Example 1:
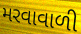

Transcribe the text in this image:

મરવાવાળી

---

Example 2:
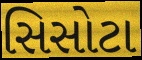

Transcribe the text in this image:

સિસોટા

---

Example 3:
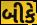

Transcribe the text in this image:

બીકે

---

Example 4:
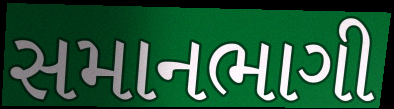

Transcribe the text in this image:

સમાનભાગી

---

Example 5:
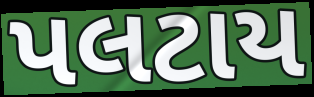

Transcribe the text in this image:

પલટાય